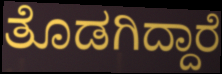
ತೊಡಗಿದ್ದಾರೆ